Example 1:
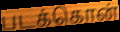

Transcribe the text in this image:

படக்கொன்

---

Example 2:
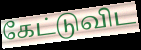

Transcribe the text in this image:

கேட்டுவிட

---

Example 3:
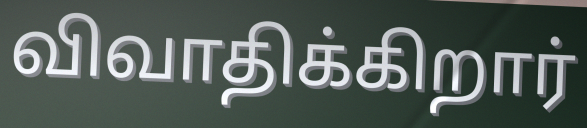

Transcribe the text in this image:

விவாதிக்கிறார்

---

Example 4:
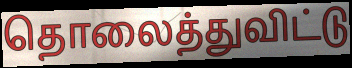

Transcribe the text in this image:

தொலைத்துவிட்டு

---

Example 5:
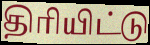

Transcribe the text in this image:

திரியிட்டு